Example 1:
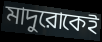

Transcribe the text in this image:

মাদুরোকেই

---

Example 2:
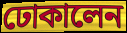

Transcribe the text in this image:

ঢোকালেন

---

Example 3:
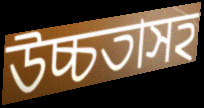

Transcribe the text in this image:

উচ্চতাসহ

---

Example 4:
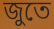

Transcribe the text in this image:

জুতে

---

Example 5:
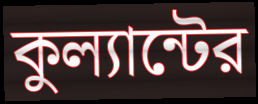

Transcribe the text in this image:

কুল্যান্টের